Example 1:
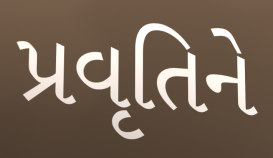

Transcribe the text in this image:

પ્રવૃતિને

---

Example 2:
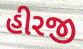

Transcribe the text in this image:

હીરજી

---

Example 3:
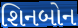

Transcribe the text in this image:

શિનબોન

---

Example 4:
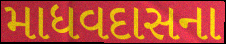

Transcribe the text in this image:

માધવદાસના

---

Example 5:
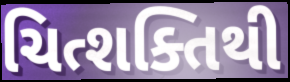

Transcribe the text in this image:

ચિત્શક્તિથી